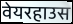
वेयरहाउस